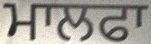
ਮਾਲਫਾ